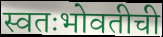
स्वतःभोवतीची